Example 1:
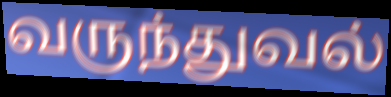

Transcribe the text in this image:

வருந்துவல்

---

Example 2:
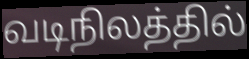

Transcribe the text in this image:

வடிநிலத்தில்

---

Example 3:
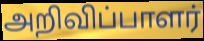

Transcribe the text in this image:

அறிவிப்பாளர்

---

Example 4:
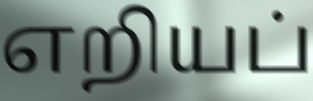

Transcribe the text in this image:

எறியப்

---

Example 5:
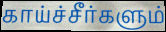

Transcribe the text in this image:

காய்ச்சீர்களும்